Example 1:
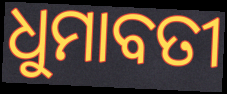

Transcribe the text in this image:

ଧୁମାବତୀ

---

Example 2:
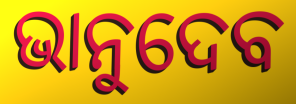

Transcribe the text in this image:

ଭାନୁଦେବ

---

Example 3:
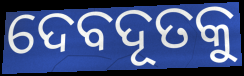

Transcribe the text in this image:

ଦେବଦୂତକୁ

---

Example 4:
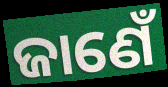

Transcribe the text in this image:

ଜାଣେଁ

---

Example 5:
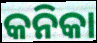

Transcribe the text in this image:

କନିକା